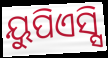
ୟୁପିଏସ୍ସି